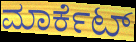
ಮಾರ್ಕೆಟ್